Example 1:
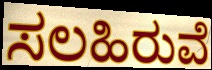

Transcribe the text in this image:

ಸಲಹಿರುವೆ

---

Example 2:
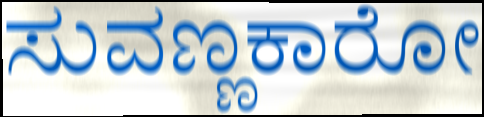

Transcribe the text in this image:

ಸುವಣ್ಣಕಾರೋ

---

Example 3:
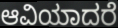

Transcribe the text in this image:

ಆವಿಯಾದರೆ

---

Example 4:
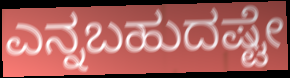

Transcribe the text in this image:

ಎನ್ನಬಹುದಷ್ಟೇ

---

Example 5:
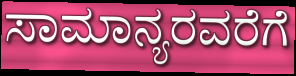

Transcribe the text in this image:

ಸಾಮಾನ್ಯರವರೆಗೆ